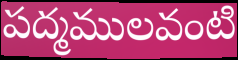
పద్మములవంటి